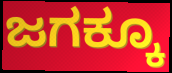
ಜಗಕ್ಕೂ